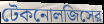
টেকনোলজিসের